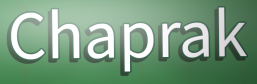
Chaprak